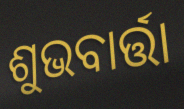
ଶୁଭବାର୍ତ୍ତା